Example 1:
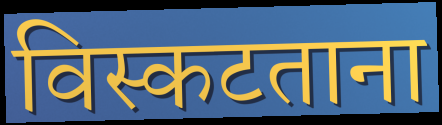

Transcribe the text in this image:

विस्कटताना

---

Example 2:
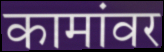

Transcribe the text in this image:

कामांवर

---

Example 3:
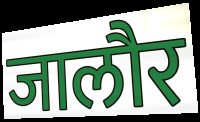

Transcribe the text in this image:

जालौर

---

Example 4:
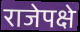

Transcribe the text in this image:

राजेपक्षे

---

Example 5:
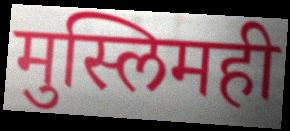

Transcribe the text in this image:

मुस्लिमही